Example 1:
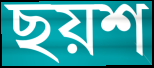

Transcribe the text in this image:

ছয়শ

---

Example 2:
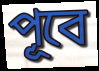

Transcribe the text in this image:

পূবে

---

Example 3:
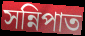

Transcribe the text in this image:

সন্নিপাত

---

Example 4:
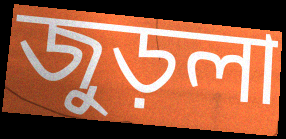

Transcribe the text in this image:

জুড়লা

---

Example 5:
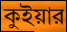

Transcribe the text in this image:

কুইয়ার